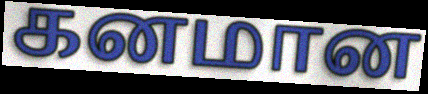
கனமான